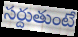
సర్దుతుంటే